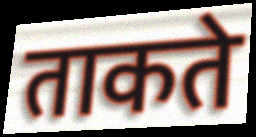
ताकते